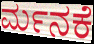
ರ್ಮನಕೆ